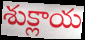
శుక్లాయ